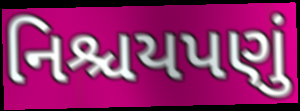
નિશ્ચયપણું